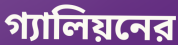
গ্যালিয়নের